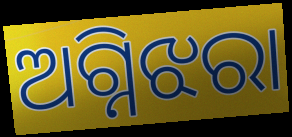
ଅଗ୍ନିଝରା